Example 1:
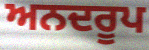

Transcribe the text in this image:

ਅਨਦਰੂਪ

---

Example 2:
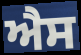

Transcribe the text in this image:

ਐੈਸ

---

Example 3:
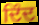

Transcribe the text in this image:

ਦਿੰਦ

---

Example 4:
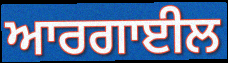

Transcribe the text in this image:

ਆਰਗਾਈਲ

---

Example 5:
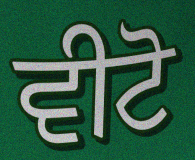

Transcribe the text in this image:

ਵੀਟੋ